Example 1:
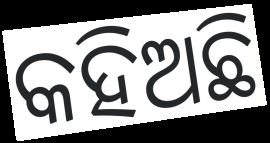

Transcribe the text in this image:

କହିଅଛି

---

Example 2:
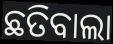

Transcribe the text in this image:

ଛତିବାଲା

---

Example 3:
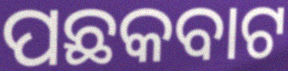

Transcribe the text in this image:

ପଛକବାଟ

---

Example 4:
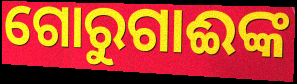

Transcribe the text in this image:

ଗୋରୁଗାଈଙ୍କ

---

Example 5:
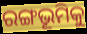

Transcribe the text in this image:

ରଙ୍ଗଭୂମିକୁ